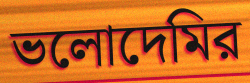
ভলোদেমির